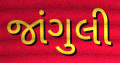
જાંગુલી